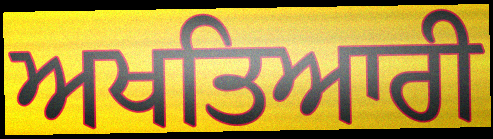
ਅਖਤਿਆਰੀ